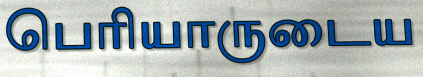
பெரியாருடைய